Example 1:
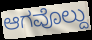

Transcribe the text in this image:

ಆಗವೊಲ್ದು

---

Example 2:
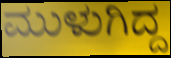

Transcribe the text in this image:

ಮುಳುಗಿದ್ದ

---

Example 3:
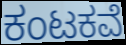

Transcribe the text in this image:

ಕಂಟಕವೆ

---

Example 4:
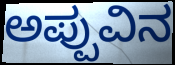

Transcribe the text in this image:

ಅಪ್ಪುವಿನ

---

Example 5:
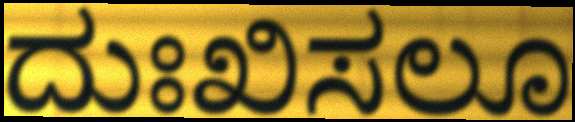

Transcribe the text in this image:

ದುಃಖಿಸಲೂ